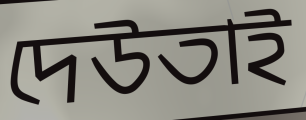
দেউতাই